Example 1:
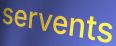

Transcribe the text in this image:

servents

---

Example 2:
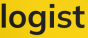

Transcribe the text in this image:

logist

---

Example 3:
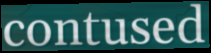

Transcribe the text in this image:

contused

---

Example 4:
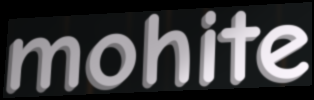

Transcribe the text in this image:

mohite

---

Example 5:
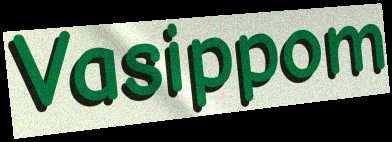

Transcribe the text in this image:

Vasippom